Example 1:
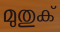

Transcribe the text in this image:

മുതുക്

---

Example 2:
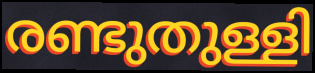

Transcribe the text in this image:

രണ്ടുതുള്ളി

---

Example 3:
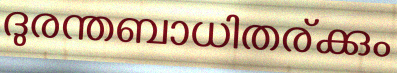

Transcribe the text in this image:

ദുരന്തബാധിതര്ക്കും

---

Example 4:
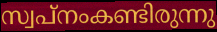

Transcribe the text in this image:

സ്വപ്നംകണ്ടിരുന്നു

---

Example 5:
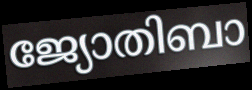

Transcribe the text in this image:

ജ്യോതിബാ